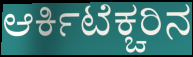
ಆರ್ಕಿಟೆಕ್ಚರಿನ